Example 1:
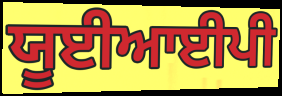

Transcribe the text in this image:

ਯੂਈਆਈਪੀ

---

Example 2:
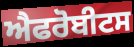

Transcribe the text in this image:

ਐਫਰੋਬੀਟਸ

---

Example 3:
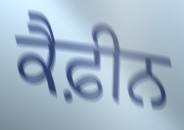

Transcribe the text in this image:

ਕੈਫ਼ੀਨ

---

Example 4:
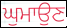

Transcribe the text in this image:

ਘੁਮਾਉਣ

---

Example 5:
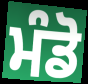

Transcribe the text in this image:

ਮੰਡੋ